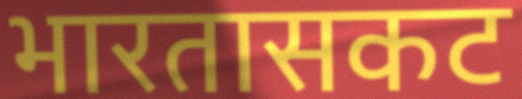
भारतासकट